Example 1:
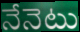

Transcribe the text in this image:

నేనెటు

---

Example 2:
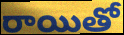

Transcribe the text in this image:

రాయితో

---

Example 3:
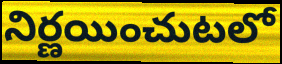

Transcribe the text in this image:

నిర్ణయించుటలో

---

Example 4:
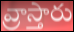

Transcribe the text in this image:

వ్రాస్తారు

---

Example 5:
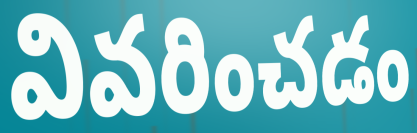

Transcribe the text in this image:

వివరించడం